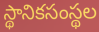
స్థానికసంస్థల